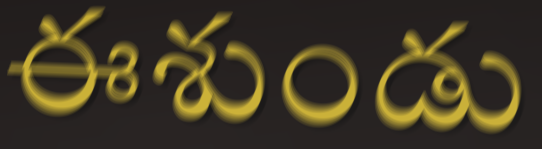
ఈశుండు